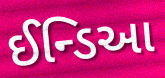
ઈન્ડિઆ